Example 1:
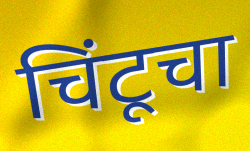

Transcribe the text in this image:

चिंटूचा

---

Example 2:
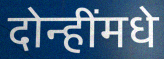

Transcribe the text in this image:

दोन्हींमधे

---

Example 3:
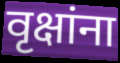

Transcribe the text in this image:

वृक्षांना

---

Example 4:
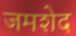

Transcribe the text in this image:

जमशेद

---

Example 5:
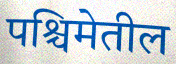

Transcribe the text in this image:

पश्चिमेतील